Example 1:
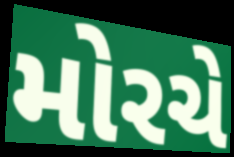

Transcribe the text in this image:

મોરચે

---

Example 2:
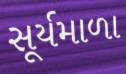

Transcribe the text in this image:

સૂર્યમાળા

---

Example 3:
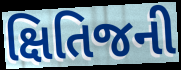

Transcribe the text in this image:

ક્ષિતિજની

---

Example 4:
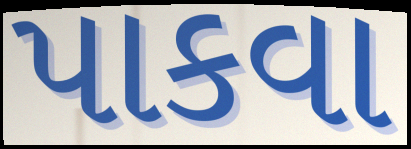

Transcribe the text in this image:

પાકવા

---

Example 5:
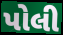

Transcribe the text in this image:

પોલી